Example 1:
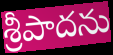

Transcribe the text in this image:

శ్రీపాదను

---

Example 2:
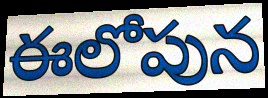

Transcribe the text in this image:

ఈలోపున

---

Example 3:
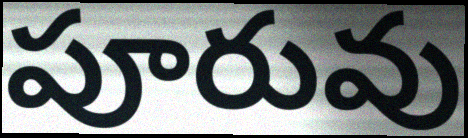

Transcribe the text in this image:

పూరువు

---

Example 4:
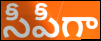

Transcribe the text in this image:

సీపీగా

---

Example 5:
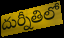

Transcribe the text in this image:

దుర్నీతిలో